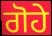
ਗੋਹੇ